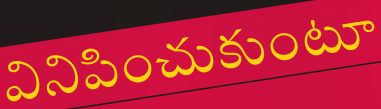
వినిపించుకుంటూ